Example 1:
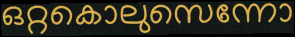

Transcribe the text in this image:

ഒറ്റകൊലുസെന്നോ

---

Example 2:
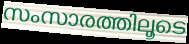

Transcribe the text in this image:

സംസാരത്തിലൂടെ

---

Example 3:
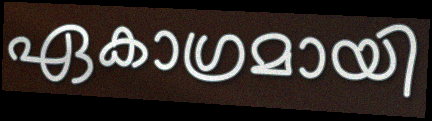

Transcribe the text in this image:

ഏകാഗ്രമായി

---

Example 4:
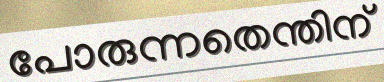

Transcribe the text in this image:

പോരുന്നതെന്തിന്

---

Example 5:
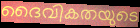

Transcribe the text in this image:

ദൈവികതയുടെ